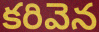
కరివెన